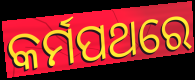
କର୍ମପଥରେ